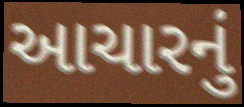
આચારનું